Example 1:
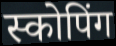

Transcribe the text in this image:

स्कोपिंग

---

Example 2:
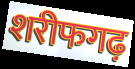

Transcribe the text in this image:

शरीफगढ़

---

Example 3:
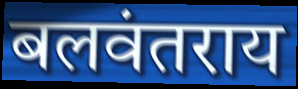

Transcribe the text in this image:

बलवंतराय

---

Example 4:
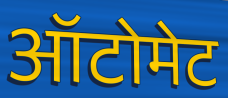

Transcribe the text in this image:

ऑटोमेट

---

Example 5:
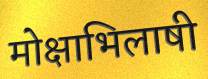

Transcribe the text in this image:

मोक्षाभिलाषी